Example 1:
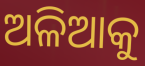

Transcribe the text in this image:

ଅଳିଆକୁ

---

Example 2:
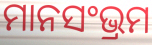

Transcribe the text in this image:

ମାନସଂଭ୍ରମ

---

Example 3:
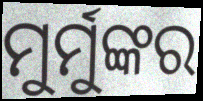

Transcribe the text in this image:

ମୁର୍ମୁଙ୍କର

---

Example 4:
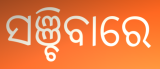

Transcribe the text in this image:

ସଞ୍ଚିବାରେ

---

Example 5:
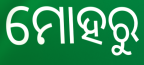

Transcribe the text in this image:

ମୋହରୁ